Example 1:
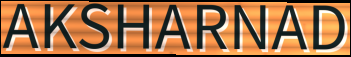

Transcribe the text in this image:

AKSHARNAD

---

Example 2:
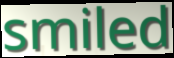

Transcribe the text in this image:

smiled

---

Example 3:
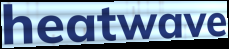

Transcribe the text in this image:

heatwave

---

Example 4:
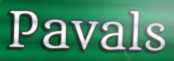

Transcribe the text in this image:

Pavals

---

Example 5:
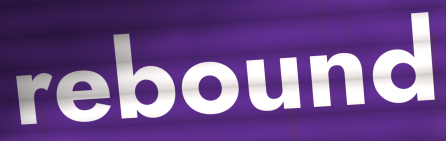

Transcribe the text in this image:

rebound